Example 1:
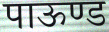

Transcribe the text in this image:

पाऊण्ड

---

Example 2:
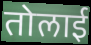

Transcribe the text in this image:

तोलाई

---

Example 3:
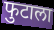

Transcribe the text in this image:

फुटाला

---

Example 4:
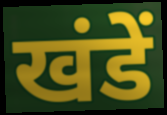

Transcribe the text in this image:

खंडें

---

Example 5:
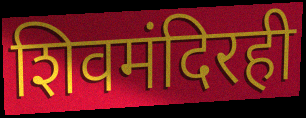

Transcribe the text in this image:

शिवमंदिरही